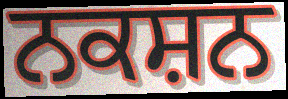
ਨਕਸ਼ਨ